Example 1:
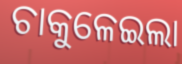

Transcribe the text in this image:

ଚାକୁଳେଇଲା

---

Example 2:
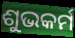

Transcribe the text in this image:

ଶୁଭକର୍ମ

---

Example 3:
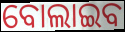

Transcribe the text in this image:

ବୋଲାଇବ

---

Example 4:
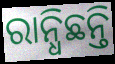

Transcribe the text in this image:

ରାନ୍ଧିଛନ୍ତି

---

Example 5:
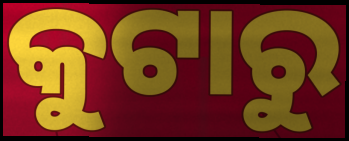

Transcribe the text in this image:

କୁଟାରୁ